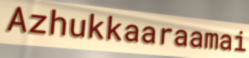
Azhukkaaraamai